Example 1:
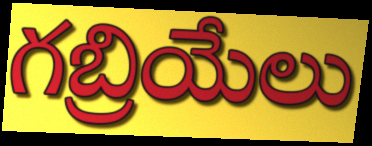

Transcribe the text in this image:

గబ్రియేలు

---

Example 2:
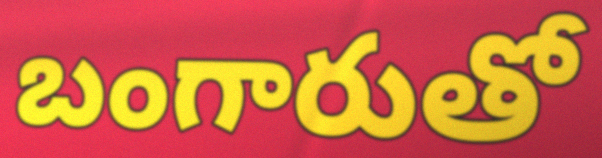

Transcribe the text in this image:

బంగారుతో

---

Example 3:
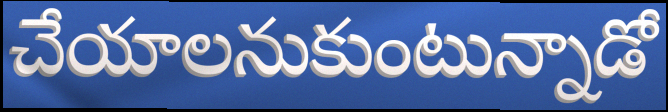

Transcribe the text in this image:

చేయాలనుకుంటున్నాడో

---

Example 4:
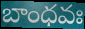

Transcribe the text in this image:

బాంధవః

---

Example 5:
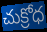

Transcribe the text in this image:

చుక్రోధ